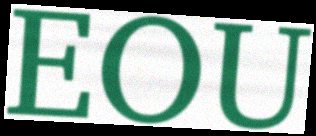
EOU